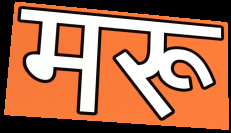
मरू